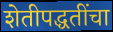
शेतीपद्धतींचा